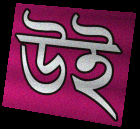
উই